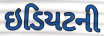
ઇડિયટની